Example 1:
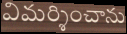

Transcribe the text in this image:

విమర్శించాను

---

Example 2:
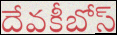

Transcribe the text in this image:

దేవకీబోస్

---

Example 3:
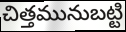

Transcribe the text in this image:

చిత్తమునుబట్టి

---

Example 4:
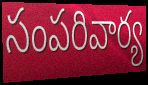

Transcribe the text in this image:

సంపరివార్య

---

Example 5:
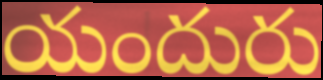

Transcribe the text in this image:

యందురు